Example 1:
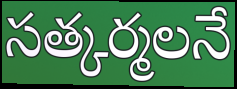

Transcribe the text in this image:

సత్కర్మలనే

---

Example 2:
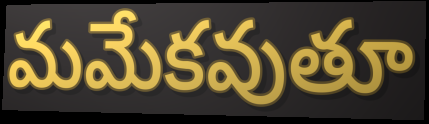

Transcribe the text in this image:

మమేకవుతూ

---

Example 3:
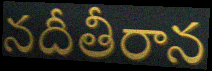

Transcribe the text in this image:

నదీతీరాన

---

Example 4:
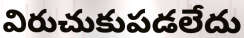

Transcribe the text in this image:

విరుచుకుపడలేదు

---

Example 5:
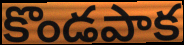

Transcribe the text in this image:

కొండపాక